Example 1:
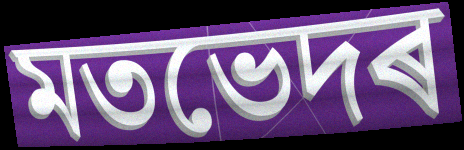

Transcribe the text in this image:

মতভেদৰ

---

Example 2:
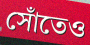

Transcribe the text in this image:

সোঁতেও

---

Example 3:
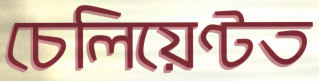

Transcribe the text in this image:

চেলিয়েণ্টত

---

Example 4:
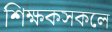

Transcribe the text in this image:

শিক্ষকসকলে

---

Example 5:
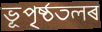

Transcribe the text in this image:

ভূপৃষ্ঠতলৰ